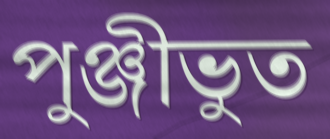
পুঞ্জীভুত